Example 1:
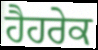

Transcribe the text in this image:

ਹੈਹਰੇਕ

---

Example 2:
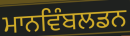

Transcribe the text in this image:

ਮਾਨਵਿੰਬਲਡਨ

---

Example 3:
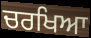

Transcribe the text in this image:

ਚਰਖਿਆ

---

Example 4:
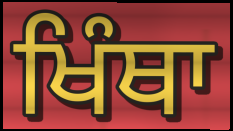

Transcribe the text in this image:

ਖਿੰਥਾ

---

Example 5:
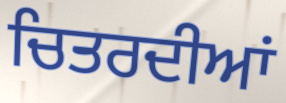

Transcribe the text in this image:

ਚਿਤਰਦੀਆਂ